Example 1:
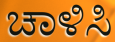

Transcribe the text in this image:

ಚಾಳಿಸಿ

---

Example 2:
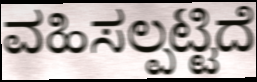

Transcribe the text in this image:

ವಹಿಸಲ್ಪಟ್ಟಿದೆ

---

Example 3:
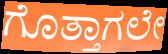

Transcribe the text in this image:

ಗೊತ್ತಾಗಲೇ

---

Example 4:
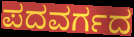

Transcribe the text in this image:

ಪದವರ್ಗದ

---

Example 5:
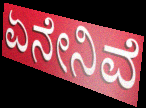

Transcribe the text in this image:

ಏನೇನಿವೆ